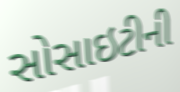
સોસાઇટીની